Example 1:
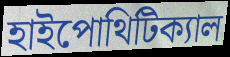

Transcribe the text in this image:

হাইপোথিটিক্যাল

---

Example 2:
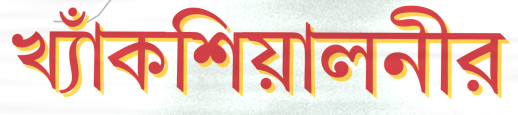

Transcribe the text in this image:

খ্যাঁকশিয়ালনীর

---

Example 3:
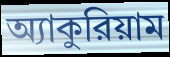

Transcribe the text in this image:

অ্যাকুরিয়াম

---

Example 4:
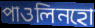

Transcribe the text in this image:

পাওলিনহো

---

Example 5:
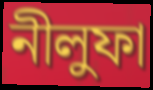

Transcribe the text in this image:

নীলুফা